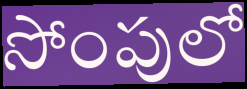
సోంపులో